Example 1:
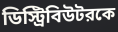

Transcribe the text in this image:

ডিস্ট্রিবিউটরকে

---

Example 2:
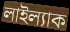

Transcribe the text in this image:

লাইল্যাক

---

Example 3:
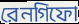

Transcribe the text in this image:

রেনগিফো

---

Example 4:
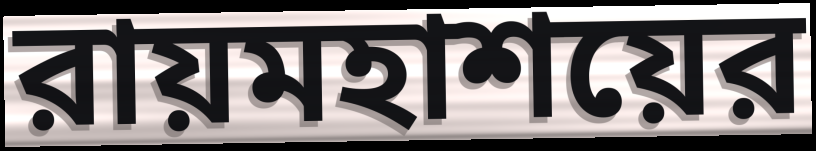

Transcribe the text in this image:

রায়মহাশয়ের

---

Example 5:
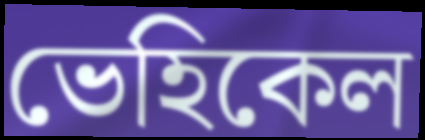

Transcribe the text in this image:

ভেহিকেল